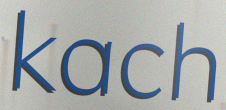
kach